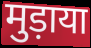
मुड़ाया